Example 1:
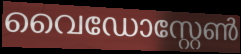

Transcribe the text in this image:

വൈഡോസ്റ്റേൺ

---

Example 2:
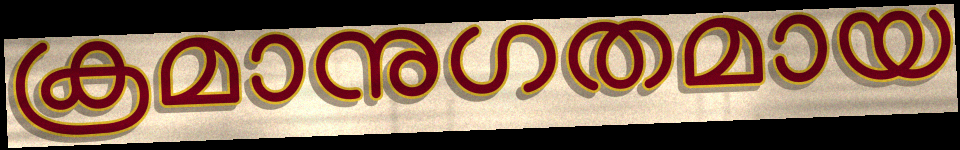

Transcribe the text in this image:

ക്രമാനുഗതമായ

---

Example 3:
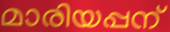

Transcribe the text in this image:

മാരിയപ്പന്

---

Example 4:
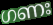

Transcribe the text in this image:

ഗണഃ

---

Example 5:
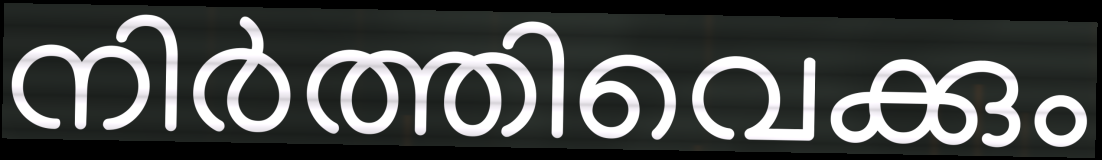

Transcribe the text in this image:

നിർത്തിവെക്കും